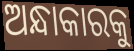
ଅନ୍ଧାକାରକୁ